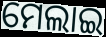
ମେଲାଇ